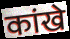
कांखे